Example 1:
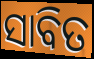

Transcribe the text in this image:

ସାବିତ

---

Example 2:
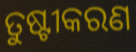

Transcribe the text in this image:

ତୁଷ୍ଟୀକରଣ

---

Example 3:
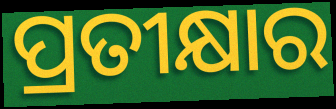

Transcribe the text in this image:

ପ୍ରତୀକ୍ଷାର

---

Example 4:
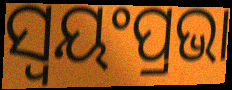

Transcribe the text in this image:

ସ୍ଵୟଂପ୍ରଭା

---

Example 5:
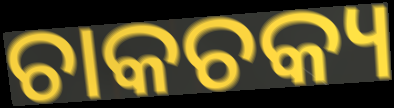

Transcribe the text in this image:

ଚାକଚକ୍ୟ